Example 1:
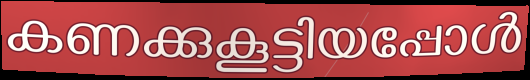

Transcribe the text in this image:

കണക്കുകൂട്ടിയപ്പോൾ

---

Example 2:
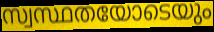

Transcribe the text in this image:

സ്വസ്ഥതയോടെയും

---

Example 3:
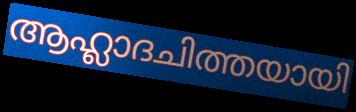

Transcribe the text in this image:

ആഹ്ലാദചിത്തയായി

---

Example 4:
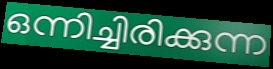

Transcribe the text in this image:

ഒന്നിച്ചിരിക്കുന്ന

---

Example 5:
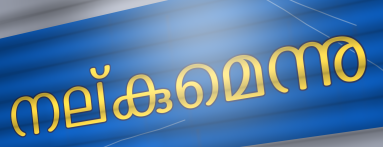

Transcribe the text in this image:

നല്‌കുമെന്നു